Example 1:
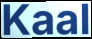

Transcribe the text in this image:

Kaal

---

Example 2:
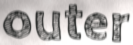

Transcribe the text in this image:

outer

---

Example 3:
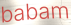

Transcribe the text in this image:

babam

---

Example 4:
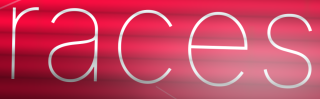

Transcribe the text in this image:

races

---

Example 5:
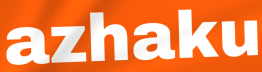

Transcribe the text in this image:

azhaku